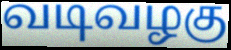
வடிவழகு